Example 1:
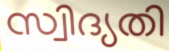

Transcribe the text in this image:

സ്വിദ്യതി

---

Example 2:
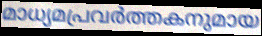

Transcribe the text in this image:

മാധ്യമപ്രവർത്തകനുമായ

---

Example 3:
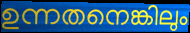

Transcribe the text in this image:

ഉന്നതനെങ്കിലും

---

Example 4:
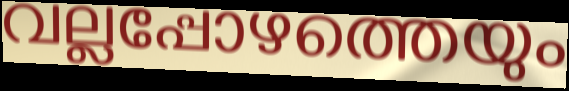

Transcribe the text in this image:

വല്ലപ്പോഴത്തെയും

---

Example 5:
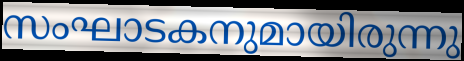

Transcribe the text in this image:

സംഘാടകനുമായിരുന്നു